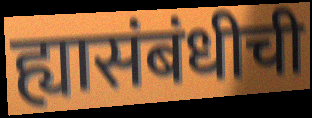
ह्यासंबंधीची